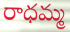
రాధమ్మ